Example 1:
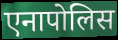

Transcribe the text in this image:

एनापोलिस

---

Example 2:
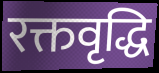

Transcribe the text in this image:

रक्तवृद्धि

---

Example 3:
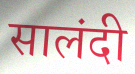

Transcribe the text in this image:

सालंदी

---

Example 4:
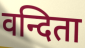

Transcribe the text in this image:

वन्दिता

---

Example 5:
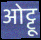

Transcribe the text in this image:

ओट्टू